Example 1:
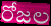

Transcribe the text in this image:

రోజల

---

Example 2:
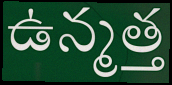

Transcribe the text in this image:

ఉన్మత్త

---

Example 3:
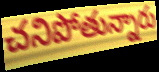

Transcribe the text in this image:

చనిపోతున్నారు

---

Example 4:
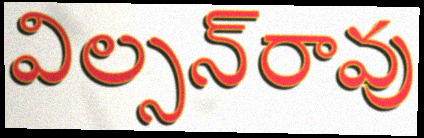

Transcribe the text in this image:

విల్సన్‌రావు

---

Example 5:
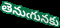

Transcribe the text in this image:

తెనుఁగునకు